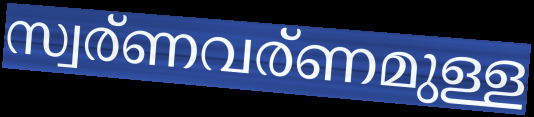
സ്വര്ണവര്ണമുള്ള